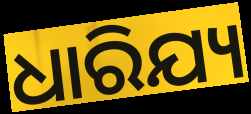
ଧାରିଯ୍ୟ